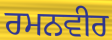
ਰਮਨਵੀਰ